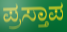
ಪ್ರಸ್ತಾಪ